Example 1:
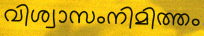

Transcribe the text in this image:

വിശ്വാസംനിമിത്തം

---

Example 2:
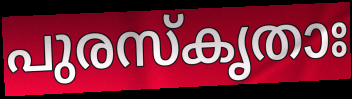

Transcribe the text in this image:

പുരസ്കൃതാഃ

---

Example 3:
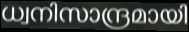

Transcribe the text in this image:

ധ്വനിസാന്ദ്രമായി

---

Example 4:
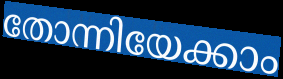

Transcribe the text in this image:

തോന്നിയേക്കാം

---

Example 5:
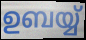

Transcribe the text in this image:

ഉബയ്യ്